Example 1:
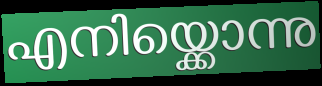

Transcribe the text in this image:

എനിയ്ക്കൊന്നു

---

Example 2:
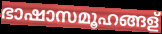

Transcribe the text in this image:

ഭാഷാസമൂഹങ്ങള്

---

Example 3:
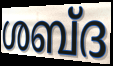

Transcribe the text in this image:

ശബ്ദ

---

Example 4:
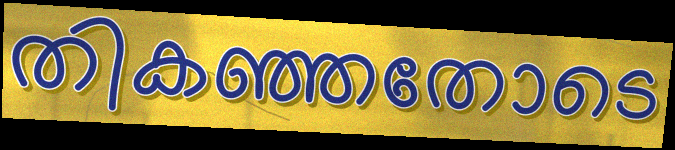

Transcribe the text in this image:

തികഞ്ഞതോടെ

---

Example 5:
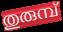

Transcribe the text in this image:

തുരുമ്പ്